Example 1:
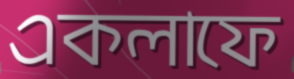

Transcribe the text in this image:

একলাফে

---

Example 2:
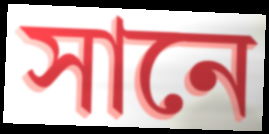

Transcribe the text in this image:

সানে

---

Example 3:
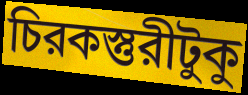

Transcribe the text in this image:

চিরকস্তুরীটুকু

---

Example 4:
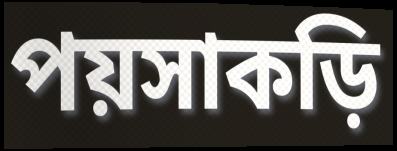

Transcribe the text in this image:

পয়সাকড়ি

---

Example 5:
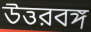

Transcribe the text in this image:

উত্তরবঙ্গ